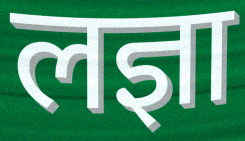
लज्ञा